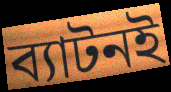
ব্যাটনই